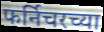
फर्निचरच्या